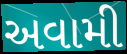
અવામી